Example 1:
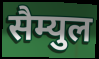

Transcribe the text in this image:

सैम्युल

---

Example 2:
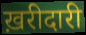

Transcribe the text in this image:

ख़रीदारी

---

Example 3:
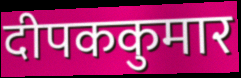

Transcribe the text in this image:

दीपककुमार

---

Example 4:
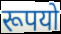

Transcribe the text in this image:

रूपयो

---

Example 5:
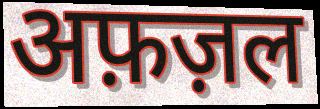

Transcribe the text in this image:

अफ़ज़ल